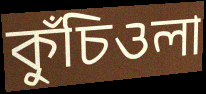
কুঁচিওলা